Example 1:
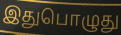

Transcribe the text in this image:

இதுபொழுது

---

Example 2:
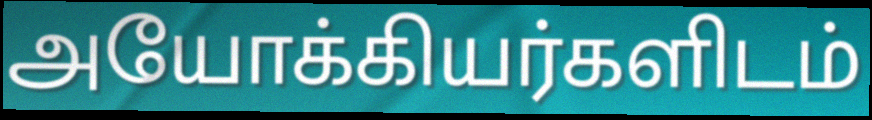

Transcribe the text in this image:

அயோக்கியர்களிடம்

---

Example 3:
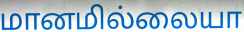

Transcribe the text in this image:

மானமில்லையா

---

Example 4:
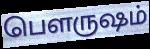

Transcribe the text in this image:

பௌருஷம்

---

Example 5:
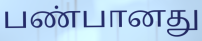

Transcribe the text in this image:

பண்பானது